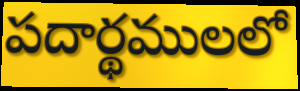
పదార్థములలో